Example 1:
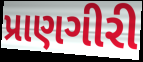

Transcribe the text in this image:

પ્રાણગીરી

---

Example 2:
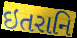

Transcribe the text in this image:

ઇતરાનિ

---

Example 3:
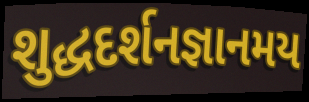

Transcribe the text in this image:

શુદ્ધદર્શનજ્ઞાનમય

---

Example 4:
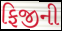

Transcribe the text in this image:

ફિજીની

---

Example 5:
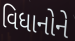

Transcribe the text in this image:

વિધાનોને